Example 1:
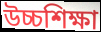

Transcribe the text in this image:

উচ্চশিক্ষা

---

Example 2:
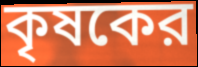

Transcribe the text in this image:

কৃষকের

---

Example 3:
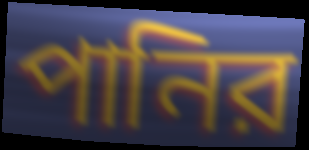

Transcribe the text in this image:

পানির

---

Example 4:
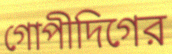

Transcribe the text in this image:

গোপীদিগের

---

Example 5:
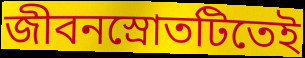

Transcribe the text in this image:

জীবনস্রোতটিতেই